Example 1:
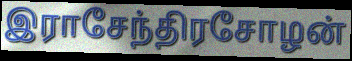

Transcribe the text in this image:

இராசேந்திரசோழன்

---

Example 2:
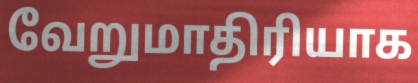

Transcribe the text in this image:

வேறுமாதிரியாக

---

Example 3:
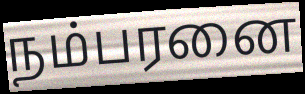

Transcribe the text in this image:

நம்பரனை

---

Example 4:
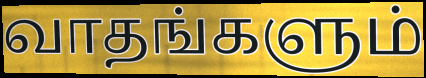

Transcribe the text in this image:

வாதங்களும்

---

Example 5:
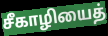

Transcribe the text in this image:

சீகாழியைத்